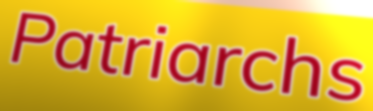
Patriarchs